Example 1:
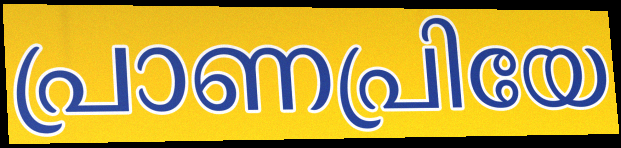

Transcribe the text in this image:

പ്രാണപ്രിയേ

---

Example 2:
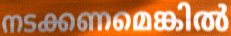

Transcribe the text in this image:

നടക്കണമെങ്കിൽ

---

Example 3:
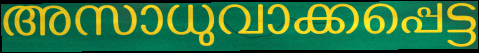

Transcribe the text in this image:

അസാധുവാക്കപ്പെട്ട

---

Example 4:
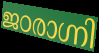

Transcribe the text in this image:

ജഠരാഗ്നി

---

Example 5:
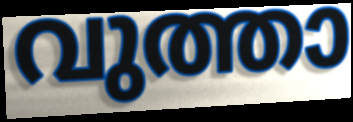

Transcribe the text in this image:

വുത്താ